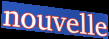
nouvelle